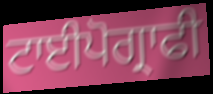
ਟਾਈਪੋਗ੍ਰਾਫੀ